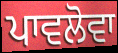
ਪਾਵਲੋਵਾ